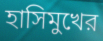
হাসিমুখের